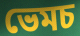
ভেমচ